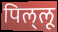
पिल्लू